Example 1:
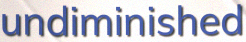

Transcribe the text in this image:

undiminished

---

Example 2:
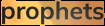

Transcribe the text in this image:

prophets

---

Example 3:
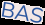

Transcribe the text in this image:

BAS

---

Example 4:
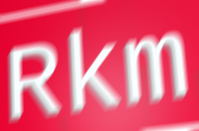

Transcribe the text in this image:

Rkm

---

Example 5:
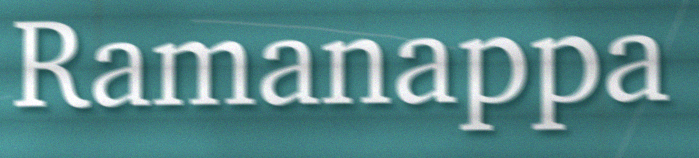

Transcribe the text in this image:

Ramanappa